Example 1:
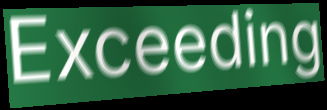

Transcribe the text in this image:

Exceeding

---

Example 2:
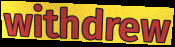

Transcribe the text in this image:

withdrew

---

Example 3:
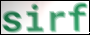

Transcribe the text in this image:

sirf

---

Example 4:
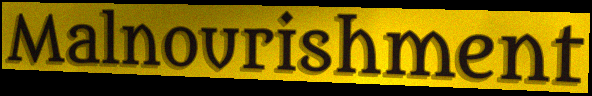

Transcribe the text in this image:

Malnourishment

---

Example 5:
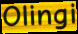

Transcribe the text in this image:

Olingi